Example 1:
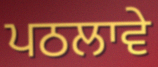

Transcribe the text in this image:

ਪਠਲਾਵੇ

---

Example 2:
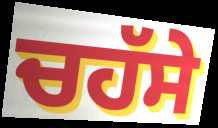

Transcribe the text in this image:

ਚਹੱਸੇ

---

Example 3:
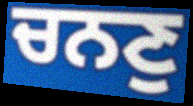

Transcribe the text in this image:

ਚਨਣੁ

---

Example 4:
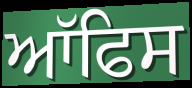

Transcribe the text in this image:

ਆੱਫਿਸ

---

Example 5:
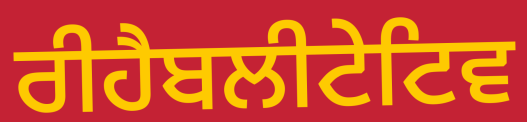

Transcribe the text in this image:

ਰੀਹੈਬਲੀਟੇਟਿਵ